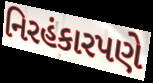
નિરહંકારપણે